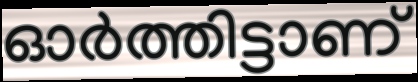
ഓർത്തിട്ടാണ്